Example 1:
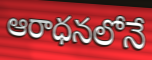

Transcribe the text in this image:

ఆరాధనలోనే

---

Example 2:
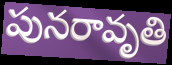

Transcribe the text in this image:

పునరావృతి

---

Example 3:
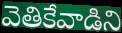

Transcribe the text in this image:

వెతికేవాడిని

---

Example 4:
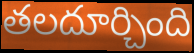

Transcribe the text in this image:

తలదూర్చింది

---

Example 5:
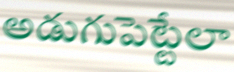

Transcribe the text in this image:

అడుగుపెట్టేలా